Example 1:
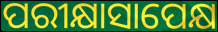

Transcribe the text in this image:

ପରୀକ୍ଷାସାପେକ୍ଷ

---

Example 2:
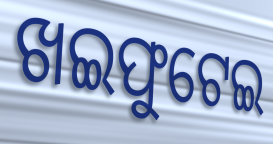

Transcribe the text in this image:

ଖଇଫୁଟେଇ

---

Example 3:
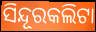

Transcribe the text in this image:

ସିନ୍ଦୂରକଲିଟା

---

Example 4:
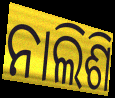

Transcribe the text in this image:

ନାଲିଶି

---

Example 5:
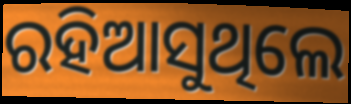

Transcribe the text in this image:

ରହିଆସୁଥିଲେ